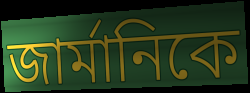
জার্মানিকে